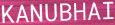
KANUBHAI